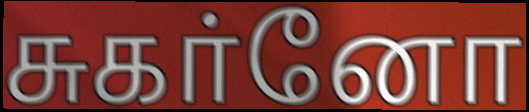
சுகர்னோ